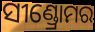
ସୀଣ୍ଡ୍ରୋମର